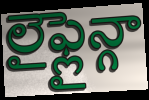
లైఫ్లైన్గా